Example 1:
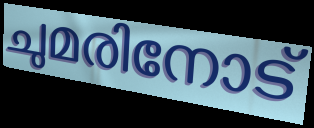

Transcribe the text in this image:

ചുമരിനോട്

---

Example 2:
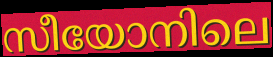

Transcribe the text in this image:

സീയോനിലെ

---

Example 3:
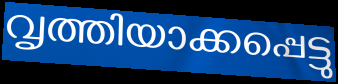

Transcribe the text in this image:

വൃത്തിയാക്കപ്പെട്ടു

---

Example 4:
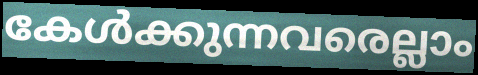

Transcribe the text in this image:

കേൾക്കുന്നവരെല്ലാം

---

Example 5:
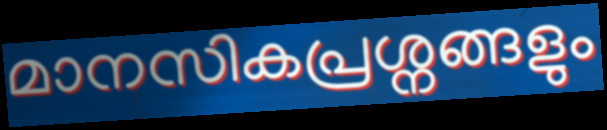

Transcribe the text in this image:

മാനസികപ്രശ്നങ്ങളും